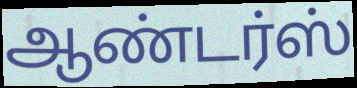
ஆண்டர்ஸ்